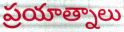
ప్రయాత్నాలు